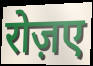
रोज़ए